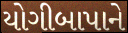
યોગીબાપાને